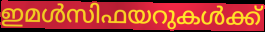
ഇമൾസിഫയറുകൾക്ക്